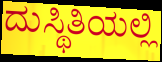
ದುಸ್ಥಿತಿಯಲ್ಲಿ